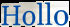
Hollo